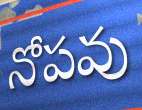
నోపవు